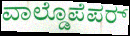
ವಾಲ್ಡೊಪೆಪರ್‍